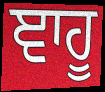
ਞਾਹੂ